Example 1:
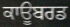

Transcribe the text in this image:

ਕਾਊਬਰਡ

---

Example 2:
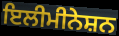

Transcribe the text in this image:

ਇਲੀਮੀਨੇਸ਼ਨ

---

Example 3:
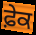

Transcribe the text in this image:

ਫ਼ੇਕ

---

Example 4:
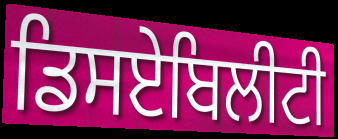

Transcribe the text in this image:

ਡਿਸਏਬਿਲੀਟੀ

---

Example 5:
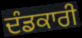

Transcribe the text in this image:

ਦੰਡਕਾਰੀ